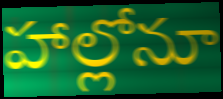
హాల్లోనూ